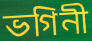
ভগিনী